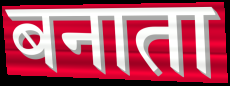
बनाता